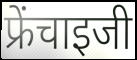
फ्रेंचाइजी